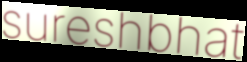
sureshbhat